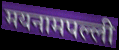
मयनामपल्ली